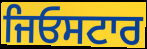
ਜਿਓਸਟਾਰ